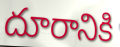
దూరానికి